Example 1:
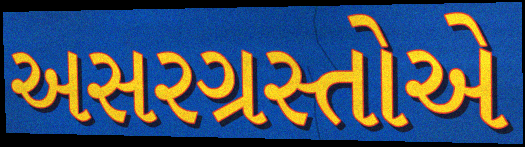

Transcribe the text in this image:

અસરગ્રસ્તોએ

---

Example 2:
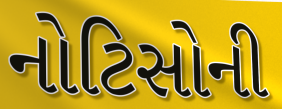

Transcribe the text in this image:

નોટિસોની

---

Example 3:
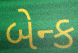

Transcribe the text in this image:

બેન્ક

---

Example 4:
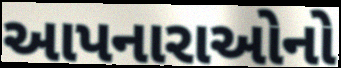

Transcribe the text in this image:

આપનારાઓનો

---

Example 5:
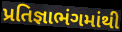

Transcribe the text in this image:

પ્રતિજ્ઞાભંગમાંથી